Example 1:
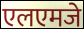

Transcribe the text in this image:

एलएमजे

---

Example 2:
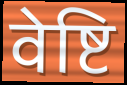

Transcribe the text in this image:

वेष्टि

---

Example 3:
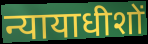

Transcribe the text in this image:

न्यायाधीशों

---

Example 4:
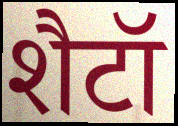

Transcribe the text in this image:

शैटॉ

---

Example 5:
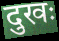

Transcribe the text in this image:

दुखः